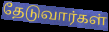
தேடுவார்கள்